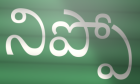
నిప్పో